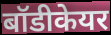
बॉडीकेयर